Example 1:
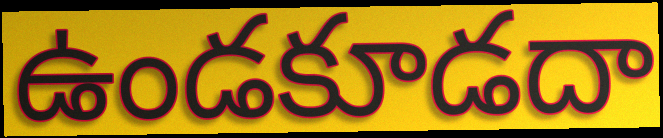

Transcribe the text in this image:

ఉండకూడదా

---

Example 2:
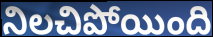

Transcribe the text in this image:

నిలచిపోయింది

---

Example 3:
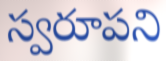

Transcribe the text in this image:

స్వరూపని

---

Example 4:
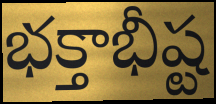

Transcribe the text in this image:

భక్తాభీష్ట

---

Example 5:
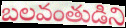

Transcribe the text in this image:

బలవంతుడిని